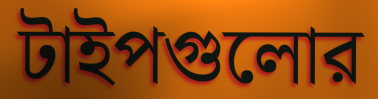
টাইপগুলোর